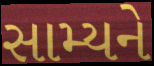
સામ્યને